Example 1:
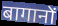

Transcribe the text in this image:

बागानों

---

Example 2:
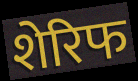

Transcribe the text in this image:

शेरिफ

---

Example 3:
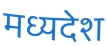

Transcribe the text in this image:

मध्यदेश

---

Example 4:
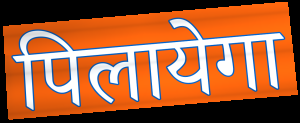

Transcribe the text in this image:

पिलायेगा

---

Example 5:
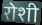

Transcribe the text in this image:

रोशी